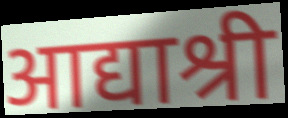
आद्याश्री